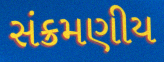
સંક્રમણીય